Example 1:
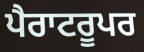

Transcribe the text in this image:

ਪੈਰਾਟਰੂਪਰ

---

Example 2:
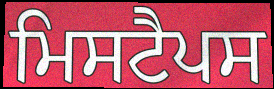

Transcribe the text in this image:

ਮਿਸਟੈਪਸ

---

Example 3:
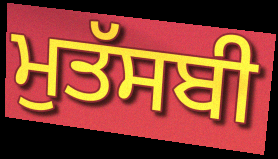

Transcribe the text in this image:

ਮੁਤੱਸਬੀ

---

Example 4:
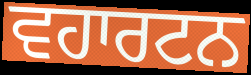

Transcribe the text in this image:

ਵਹਾਰਟਨ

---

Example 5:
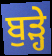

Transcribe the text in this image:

ਬੁੜ੍ਹੇ